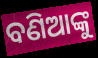
ବଣିଆଙ୍କୁ